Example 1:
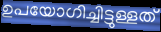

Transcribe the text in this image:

ഉപയോഗിച്ചിട്ടുള്ളത്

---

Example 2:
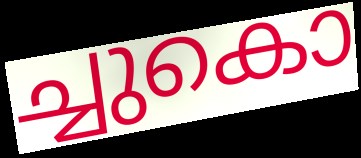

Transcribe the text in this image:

ച്ചുകൊ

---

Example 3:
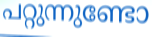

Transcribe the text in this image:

പറ്റുന്നുണ്ടോ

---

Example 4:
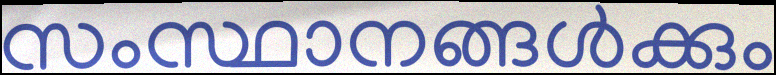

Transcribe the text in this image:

സംസ്ഥാനങ്ങൾക്കും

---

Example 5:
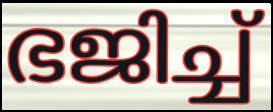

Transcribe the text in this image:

ഭജിച്ച്